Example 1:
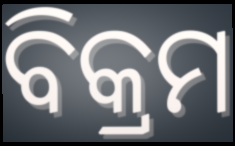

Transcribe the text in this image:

ବିକ୍ରମ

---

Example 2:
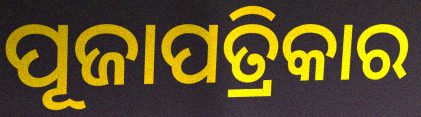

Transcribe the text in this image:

ପୂଜାପତ୍ରିକାର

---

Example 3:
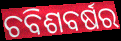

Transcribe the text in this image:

ଚବିଶବର୍ଷର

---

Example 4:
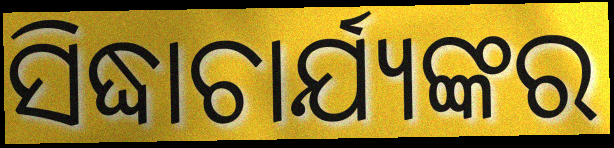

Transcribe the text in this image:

ସିଦ୍ଧାଚାର୍ଯ୍ୟଙ୍କର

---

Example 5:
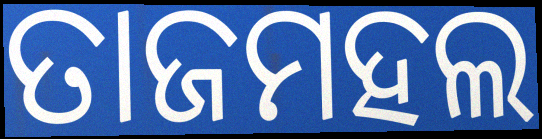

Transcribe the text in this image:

ତାଜମହଲ